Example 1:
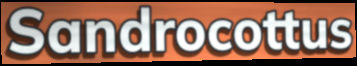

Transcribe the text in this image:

Sandrocottus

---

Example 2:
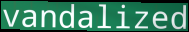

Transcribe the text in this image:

vandalized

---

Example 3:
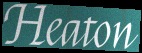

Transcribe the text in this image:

Heaton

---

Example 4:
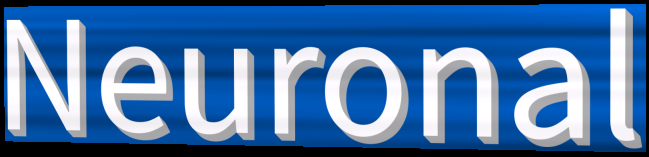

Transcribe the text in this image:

Neuronal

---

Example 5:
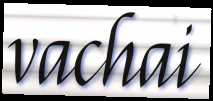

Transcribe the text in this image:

vachai